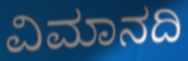
ವಿಮಾನದಿ